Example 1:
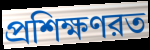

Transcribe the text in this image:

প্রশিক্ষণরত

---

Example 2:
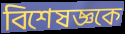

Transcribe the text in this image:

বিশেষজ্ঞকে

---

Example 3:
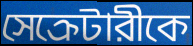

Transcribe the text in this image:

সেক্রেটারীকে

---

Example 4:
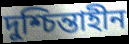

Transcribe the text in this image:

দুশ্চিন্তাহীন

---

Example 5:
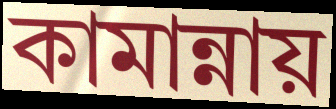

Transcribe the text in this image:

কামান্নায়